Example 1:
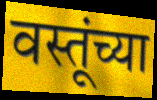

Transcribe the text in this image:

वस्तूंच्या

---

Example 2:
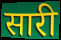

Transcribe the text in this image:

सारी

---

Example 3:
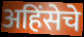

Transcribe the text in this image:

अहिंसेचे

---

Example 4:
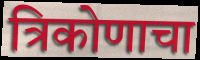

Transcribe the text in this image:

त्रिकोणाचा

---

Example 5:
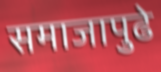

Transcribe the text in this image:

समाजापुढे